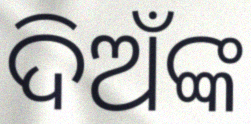
ଦିଅଁଙ୍କ